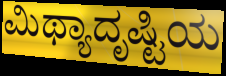
ಮಿಥ್ಯಾದೃಷ್ಟಿಯ